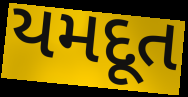
યમદૂત